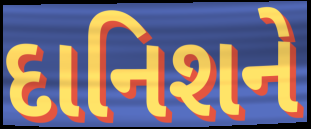
દાનિશને